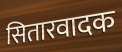
सितारवादक